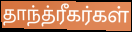
தாந்த்ரீகர்கள்